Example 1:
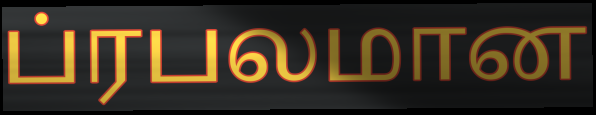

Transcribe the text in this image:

ப்ரபலமான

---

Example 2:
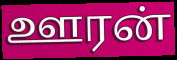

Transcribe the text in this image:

ஊரன்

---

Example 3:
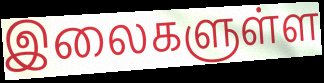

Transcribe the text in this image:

இலைகளுள்ள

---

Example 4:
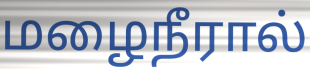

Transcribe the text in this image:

மழைநீரால்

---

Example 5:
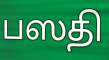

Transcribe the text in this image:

பஸதி